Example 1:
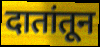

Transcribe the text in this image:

दातांतून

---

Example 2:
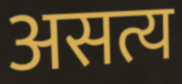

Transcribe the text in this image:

असत्य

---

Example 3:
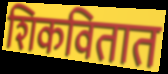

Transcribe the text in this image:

शिकवितात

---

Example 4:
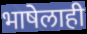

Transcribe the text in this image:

भाषेलाही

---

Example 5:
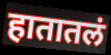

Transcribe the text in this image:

हातातलं